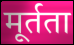
मूर्तता